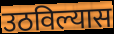
उठविल्यास